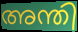
അന്തി